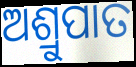
ଅଶ୍ରୁପାତ